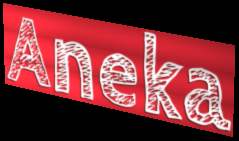
Aneka